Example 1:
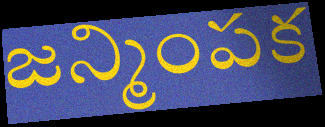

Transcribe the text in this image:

జన్మింపక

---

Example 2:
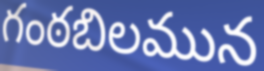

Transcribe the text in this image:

గంఠబిలమున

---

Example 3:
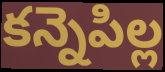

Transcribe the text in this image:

కన్నెపిల్ల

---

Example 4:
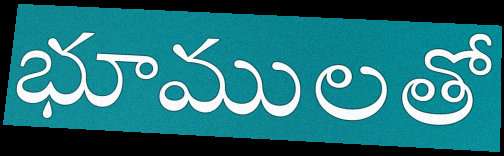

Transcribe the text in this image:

భూములతో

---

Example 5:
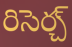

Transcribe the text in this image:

రిసెర్చ్